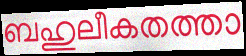
ബഹുലീകതത്താ